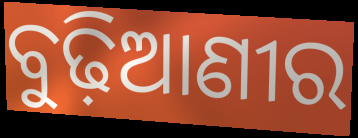
ବୁଢ଼ିଆଣୀର